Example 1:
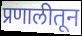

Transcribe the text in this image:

प्रणालीतून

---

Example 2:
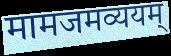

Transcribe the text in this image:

मामजमव्ययम्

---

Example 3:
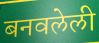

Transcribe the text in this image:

बनवलेली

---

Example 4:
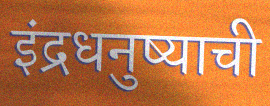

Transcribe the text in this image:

इंद्रधनुष्याची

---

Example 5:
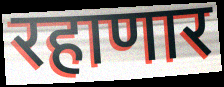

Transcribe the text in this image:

रहाणार